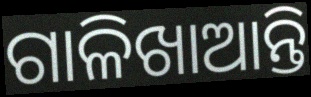
ଗାଳିଖାଆନ୍ତି